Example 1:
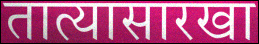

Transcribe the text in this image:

तात्यासारखा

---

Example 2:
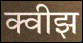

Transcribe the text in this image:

क्वीझ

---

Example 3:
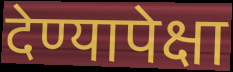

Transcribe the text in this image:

देण्यापेक्षा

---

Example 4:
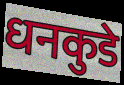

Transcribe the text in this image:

धनकुडे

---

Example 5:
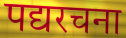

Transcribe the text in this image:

पद्यरचना